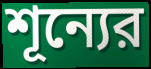
শূন্যের